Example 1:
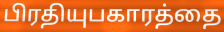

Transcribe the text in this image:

பிரதியுபகாரத்தை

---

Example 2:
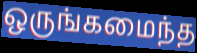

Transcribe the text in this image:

ஒருங்கமைந்த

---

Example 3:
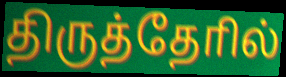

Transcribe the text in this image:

திருத்தேரில்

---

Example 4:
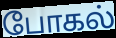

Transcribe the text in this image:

போகல்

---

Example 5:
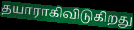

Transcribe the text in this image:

தயாராகிவிடுகிறது